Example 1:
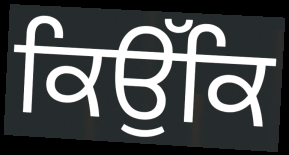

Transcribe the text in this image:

ਕਿਉੱਕਿ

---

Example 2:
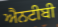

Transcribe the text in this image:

ਐਨਟੀਬੀ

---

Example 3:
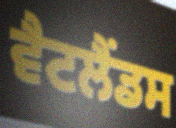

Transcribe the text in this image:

ਵੈਟਲੈਂਡਸ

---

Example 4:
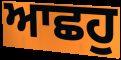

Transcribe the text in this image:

ਆਛਹੁ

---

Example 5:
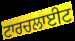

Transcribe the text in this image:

ਟਾਰਚਲਾਈਟ